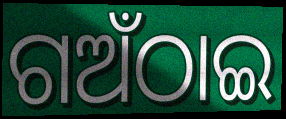
ଗଅଁଠାଇ